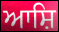
ਆਸ਼ਿ